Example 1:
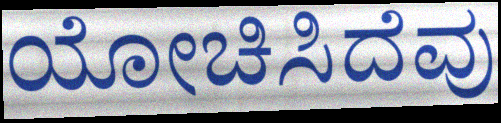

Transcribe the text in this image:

ಯೋಚಿಸಿದೆವು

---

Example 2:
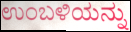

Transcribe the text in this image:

ಉಂಬಳಿಯನ್ನು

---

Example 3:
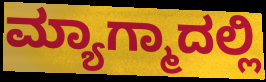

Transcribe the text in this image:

ಮ್ಯಾಗ್ಮಾದಲ್ಲಿ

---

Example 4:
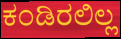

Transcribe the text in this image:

ಕಂಡಿರಲಿಲ್ಲ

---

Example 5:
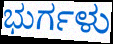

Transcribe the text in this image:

ಭುರ್ಗಳು